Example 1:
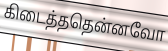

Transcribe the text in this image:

கிடைத்ததென்னவோ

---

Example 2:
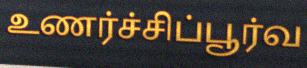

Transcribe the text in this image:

உணர்ச்சிப்பூர்வ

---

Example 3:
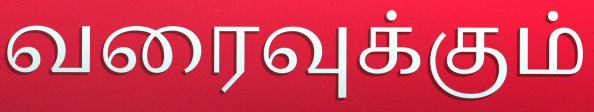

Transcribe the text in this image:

வரைவுக்கும்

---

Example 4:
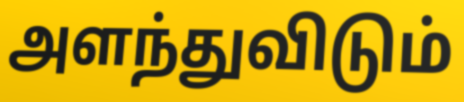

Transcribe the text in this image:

அளந்துவிடும்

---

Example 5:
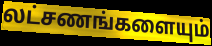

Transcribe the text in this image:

லட்சணங்களையும்